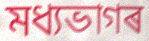
মধ্যভাগৰ